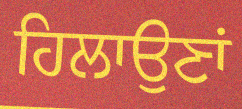
ਹਿਲਾਉਣਾਂ